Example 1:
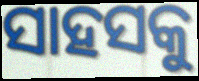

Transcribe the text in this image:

ସାହସକୁ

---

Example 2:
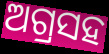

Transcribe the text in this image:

ଅଗ୍ରସହ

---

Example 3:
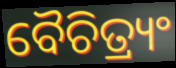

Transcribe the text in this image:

ବୈଚିତ୍ର୍ୟଂ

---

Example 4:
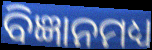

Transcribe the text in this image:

ବିଜ୍ଞାନମଧ୍ୟ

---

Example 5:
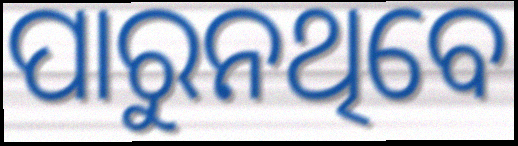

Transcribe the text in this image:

ପାରୁନଥିବେ